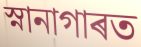
স্নানাগাৰত